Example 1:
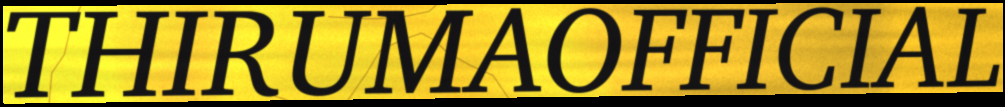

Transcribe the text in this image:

THIRUMAOFFICIAL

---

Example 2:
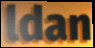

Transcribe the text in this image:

ldan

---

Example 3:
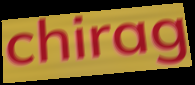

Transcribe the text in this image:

chirag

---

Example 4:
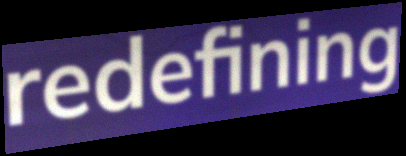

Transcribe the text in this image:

redefining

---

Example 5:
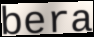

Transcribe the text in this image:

bera